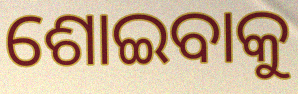
ଶୋଇବାକୁ